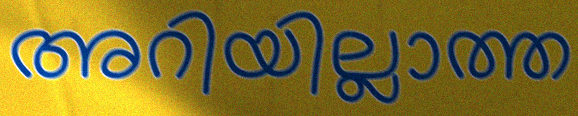
അറിയില്ലാത്ത